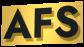
AFS